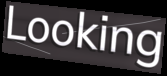
Looking